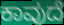
ಕಾವುದೆ